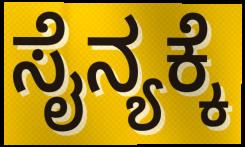
ಸೈನ್ಯಕ್ಕೆ